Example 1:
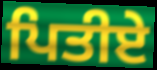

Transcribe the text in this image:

ਪਿਤੀਏ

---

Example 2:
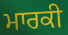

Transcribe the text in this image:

ਮਾਰਕੀ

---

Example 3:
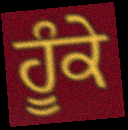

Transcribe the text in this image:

ਹੂੰਕੇ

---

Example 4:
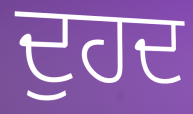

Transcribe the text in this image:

ਦੁਹਦ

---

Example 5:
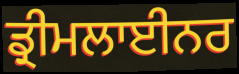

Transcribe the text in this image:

ਡ੍ਰੀਮਲਾਈਨਰ